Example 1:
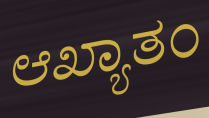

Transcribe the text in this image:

ಆಖ್ಯಾತಂ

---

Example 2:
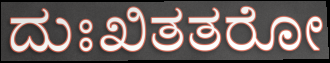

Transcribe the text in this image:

ದುಃಖಿತತರೋ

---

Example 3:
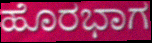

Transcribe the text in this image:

ಹೊರಭಾಗ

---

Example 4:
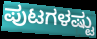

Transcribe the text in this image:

ಪುಟಗಳಷ್ಟು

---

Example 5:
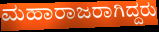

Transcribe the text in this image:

ಮಹಾರಾಜರಾಗಿದ್ದರು